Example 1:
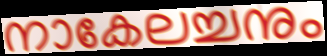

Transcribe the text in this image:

നാകേലച്ചനും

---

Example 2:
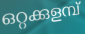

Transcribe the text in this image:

ഒറ്റക്കുളമ്പ്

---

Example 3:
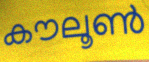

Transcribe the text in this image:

കൗലൂൺ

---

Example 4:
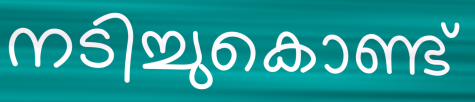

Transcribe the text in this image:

നടിച്ചുകൊണ്ട്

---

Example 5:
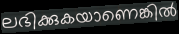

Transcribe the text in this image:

ലഭിക്കുകയാണെങ്കിൽ